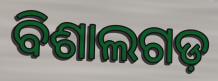
ବିଶାଲଗଡ଼